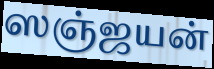
ஸஞ்ஜயன்